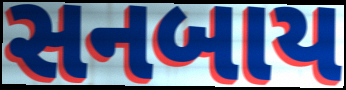
સનબાય